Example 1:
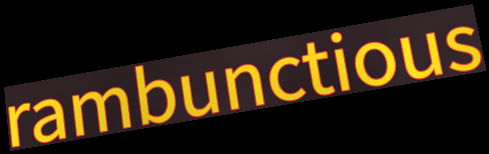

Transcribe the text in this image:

rambunctious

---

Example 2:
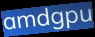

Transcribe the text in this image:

amdgpu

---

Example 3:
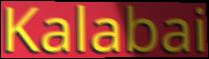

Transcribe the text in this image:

Kalabai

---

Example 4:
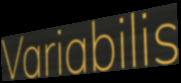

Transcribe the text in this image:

Variabilis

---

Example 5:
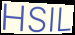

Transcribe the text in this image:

HSIL